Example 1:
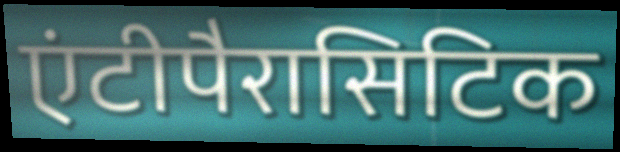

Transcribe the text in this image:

एंटीपैरासिटिक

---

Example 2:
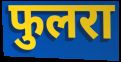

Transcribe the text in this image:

फुलरा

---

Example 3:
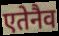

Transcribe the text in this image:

एतेनैव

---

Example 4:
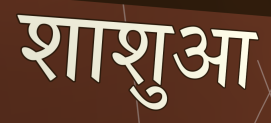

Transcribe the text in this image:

शाशुआ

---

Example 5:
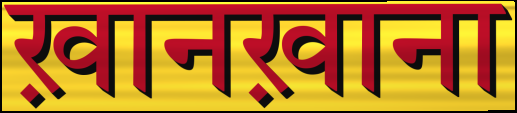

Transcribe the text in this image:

ख़ानख़ाना